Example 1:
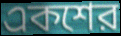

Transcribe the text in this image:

একশের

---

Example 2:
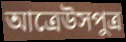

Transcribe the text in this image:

আত্রেউসপুত্র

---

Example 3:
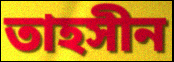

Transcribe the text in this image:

তাহসীন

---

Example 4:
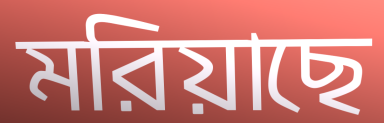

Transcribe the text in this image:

মরিয়াছে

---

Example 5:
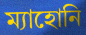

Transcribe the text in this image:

ম্যাহোনি